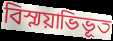
বিস্ময়াভিভূত